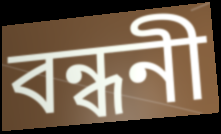
বন্ধনী